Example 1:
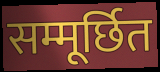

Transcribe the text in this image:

सम्मूर्छित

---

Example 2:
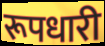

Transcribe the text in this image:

रूपधारी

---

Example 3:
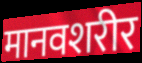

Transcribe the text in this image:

मानवशरीर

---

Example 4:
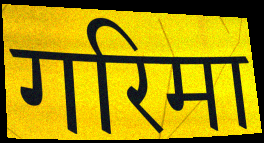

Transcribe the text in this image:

गरिमा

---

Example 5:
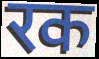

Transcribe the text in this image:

रक